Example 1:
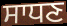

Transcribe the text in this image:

ਸਾਧਣ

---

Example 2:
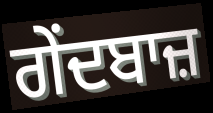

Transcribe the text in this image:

ਗੇਂਦਬਾਜ਼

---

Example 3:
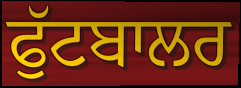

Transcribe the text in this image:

ਫੁੱਟਬਾਲਰ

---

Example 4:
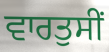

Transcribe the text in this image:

ਵਾਰਤੁਸੀਂ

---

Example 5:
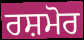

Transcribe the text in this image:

ਰਸ਼ਮੋਰ